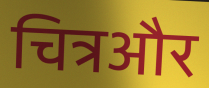
चित्रऔर